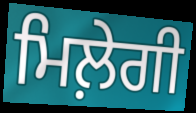
ਮਿਲ਼ੇਗੀ